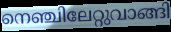
നെഞ്ചിലേറ്റുവാങ്ങി